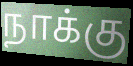
நாக்கு